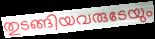
തുടങ്ങിയവരുടേയും